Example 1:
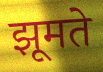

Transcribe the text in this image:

झूमते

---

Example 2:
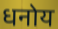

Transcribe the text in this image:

धनोय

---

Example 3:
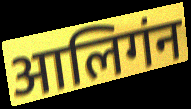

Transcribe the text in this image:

आलिगंन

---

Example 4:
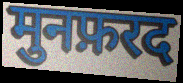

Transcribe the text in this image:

मुनफ़रद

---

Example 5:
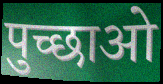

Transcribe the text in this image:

पुच्छाओ